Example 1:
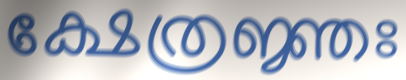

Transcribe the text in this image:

ക്ഷേത്രജ്ഞഃ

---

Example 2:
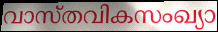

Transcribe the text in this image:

വാസ്തവികസംഖ്യാ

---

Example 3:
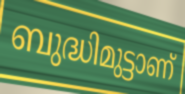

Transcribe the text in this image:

ബുദ്ധിമുട്ടാണ്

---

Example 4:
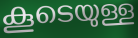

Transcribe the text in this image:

കൂടെയുള്ള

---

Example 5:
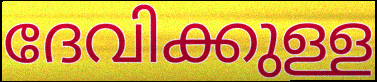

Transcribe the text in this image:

ദേവിക്കുള്ള